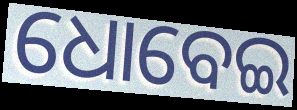
ଧୋବେଇ